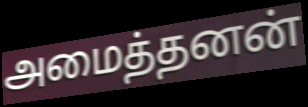
அமைத்தனன்